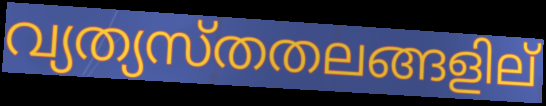
വ്യത്യസ്തതലങ്ങളില്